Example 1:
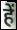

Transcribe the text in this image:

हें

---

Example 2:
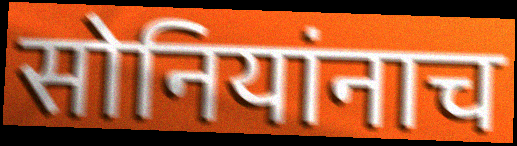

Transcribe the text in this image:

सोनियांनाच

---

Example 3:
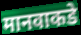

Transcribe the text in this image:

मानवाकडे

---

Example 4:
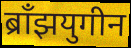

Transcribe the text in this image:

ब्राँझयुगीन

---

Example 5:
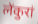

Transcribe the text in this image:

लेंकुरां